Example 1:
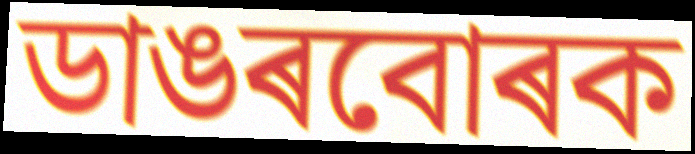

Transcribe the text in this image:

ডাঙৰবোৰক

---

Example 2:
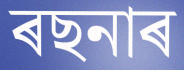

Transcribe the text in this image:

ৰছনাৰ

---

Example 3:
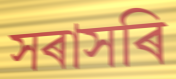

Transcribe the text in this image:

সৰাসৰি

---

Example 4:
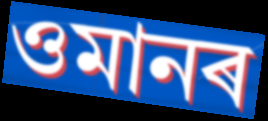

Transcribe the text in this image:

ওমানৰ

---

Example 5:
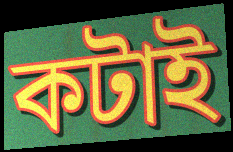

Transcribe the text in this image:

কটাই